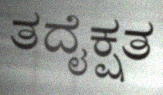
ತದೈಕ್ಷತ